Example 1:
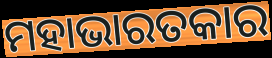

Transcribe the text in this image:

ମହାଭାରତକାର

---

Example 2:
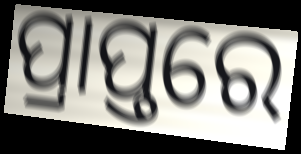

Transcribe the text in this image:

ପ୍ରାପ୍ତରେ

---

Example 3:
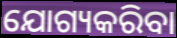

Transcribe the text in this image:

ଯୋଗ୍ୟକରିବା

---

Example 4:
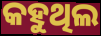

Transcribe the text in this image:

କହୁଥିଲ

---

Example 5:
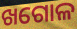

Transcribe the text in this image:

ଖଗୋଳ